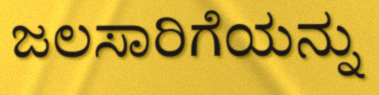
ಜಲಸಾರಿಗೆಯನ್ನು